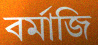
বর্মাজি